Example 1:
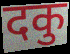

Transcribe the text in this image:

दकु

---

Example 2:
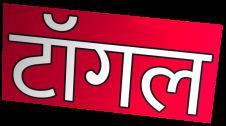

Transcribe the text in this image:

टॉगल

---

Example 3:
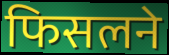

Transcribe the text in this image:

फिसलने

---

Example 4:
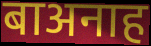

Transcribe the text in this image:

बाअनाह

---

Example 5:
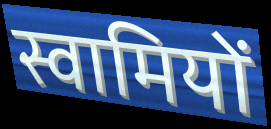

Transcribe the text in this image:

स्वामियों